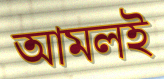
আমলই